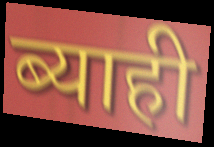
ब्याही